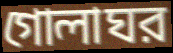
গোলাঘর